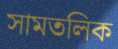
সামতলিক